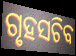
ଗୃହସଚିବ